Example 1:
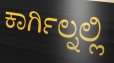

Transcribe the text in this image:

ಕಾರ್ಗಿಲ್ನಲ್ಲಿ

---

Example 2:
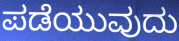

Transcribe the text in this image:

ಪಡೆಯುವುದು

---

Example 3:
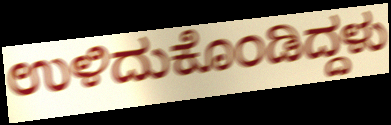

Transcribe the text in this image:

ಉಳಿದುಕೊಂಡಿದ್ದಳು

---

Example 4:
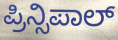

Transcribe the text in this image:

ಪ್ರಿನ್ಸಿಪಾಲ್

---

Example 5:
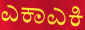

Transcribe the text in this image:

ಎಕಾಎಕಿ